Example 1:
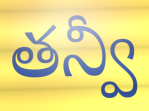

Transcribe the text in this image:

తన్వీ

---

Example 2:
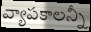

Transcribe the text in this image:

వ్యాపకాలన్నీ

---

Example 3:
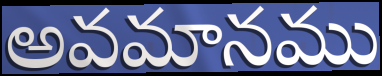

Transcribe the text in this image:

అవమానము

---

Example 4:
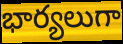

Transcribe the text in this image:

భార్యలుగా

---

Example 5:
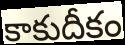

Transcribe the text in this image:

కాకుదీకం